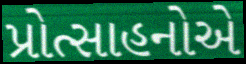
પ્રોત્સાહનોએ